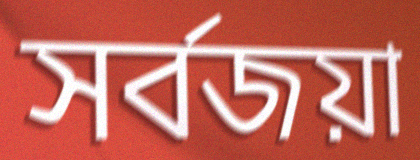
সর্বজয়া